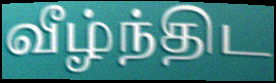
வீழ்ந்திட